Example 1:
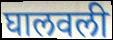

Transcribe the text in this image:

घालवली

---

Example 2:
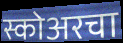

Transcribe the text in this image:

स्कोअरचा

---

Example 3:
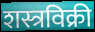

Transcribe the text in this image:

शस्त्रविक्री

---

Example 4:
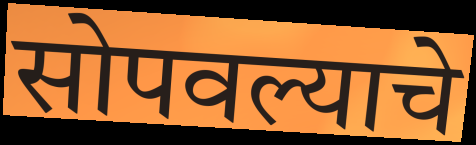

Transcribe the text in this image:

सोपवल्याचे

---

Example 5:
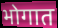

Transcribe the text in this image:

भोगात